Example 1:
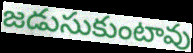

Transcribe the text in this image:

జడుసుకుంటావు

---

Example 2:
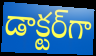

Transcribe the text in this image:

డాక్టర్‌గా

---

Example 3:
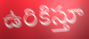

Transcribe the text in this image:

ఉరికిస్తూ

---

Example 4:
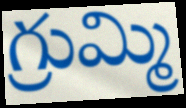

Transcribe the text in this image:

గ్రుమ్మి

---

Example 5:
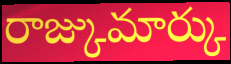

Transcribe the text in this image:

రాజ్కుమార్కు